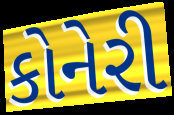
કોનેરી